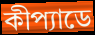
কীপ্যাডে